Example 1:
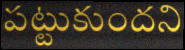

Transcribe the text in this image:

పట్టుకుందని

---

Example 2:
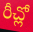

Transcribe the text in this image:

రీచ్లో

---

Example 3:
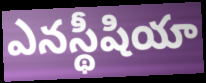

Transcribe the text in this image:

ఎనస్థీషియా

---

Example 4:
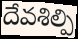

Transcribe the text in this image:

దేవశిల్పి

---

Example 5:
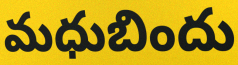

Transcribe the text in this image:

మధుబిందు